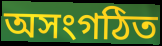
অসংগঠিত